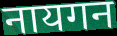
नायगन